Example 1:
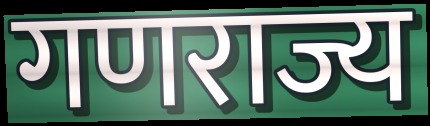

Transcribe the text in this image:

गणराज्य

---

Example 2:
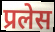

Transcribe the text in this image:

प्रलेस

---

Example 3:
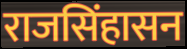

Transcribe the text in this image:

राजसिंहासन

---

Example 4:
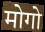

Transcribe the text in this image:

मोगो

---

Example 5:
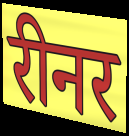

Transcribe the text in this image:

रीनर